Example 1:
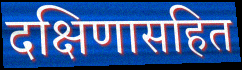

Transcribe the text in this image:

दक्षिणासहित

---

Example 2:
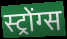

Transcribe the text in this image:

स्ट्रोंग्स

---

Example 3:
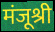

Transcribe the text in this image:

मंजूश्री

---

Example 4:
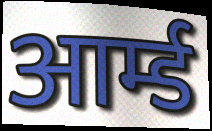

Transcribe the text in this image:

आर्म्ड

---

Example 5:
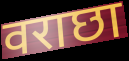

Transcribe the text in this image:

वराछा